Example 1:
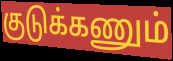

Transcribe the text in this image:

குடுக்கணும்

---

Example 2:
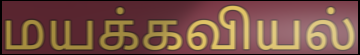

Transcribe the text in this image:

மயக்கவியல்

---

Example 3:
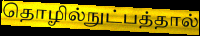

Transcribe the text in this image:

தொழில்நுட்பத்தால்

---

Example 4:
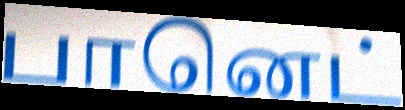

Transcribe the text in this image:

பானெட்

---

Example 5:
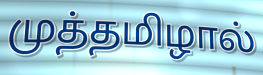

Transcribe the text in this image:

முத்தமிழால்